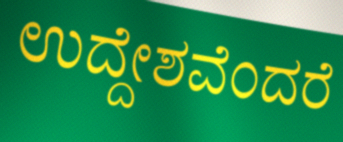
ಉದ್ದೇಶವೆಂದರೆ